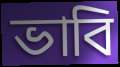
ভাবি